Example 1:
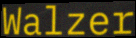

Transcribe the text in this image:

Walzer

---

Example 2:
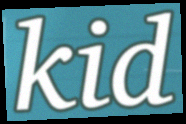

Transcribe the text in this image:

kid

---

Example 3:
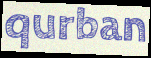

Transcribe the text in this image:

qurban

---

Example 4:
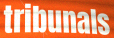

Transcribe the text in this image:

tribunals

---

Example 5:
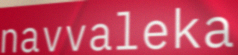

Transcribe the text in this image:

navvaleka